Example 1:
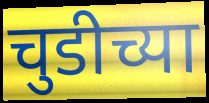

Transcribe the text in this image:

चुडीच्या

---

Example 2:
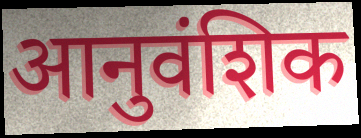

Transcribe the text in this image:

आनुवंशिक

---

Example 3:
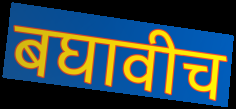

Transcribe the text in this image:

बघावीच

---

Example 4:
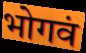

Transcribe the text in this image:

भोगवं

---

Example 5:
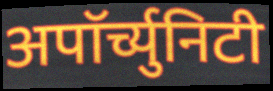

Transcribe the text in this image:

अपॉर्च्युनिटी